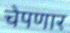
चेपणार